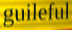
guileful